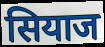
सियाज